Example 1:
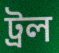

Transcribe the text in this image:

ট্রল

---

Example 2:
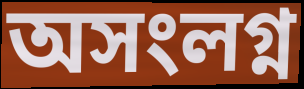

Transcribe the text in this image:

অসংলগ্ন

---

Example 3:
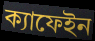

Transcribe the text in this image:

ক্যাফেইন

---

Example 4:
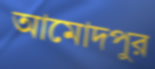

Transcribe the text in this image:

আমোদপুর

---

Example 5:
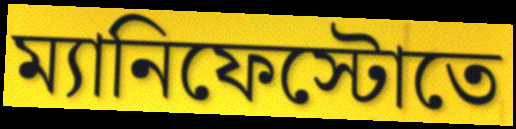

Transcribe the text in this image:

ম্যানিফেস্টোতে